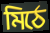
মিঠে